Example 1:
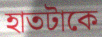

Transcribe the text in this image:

হাতটাকে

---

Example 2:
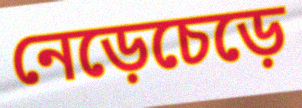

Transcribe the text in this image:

নেড়েচেড়ে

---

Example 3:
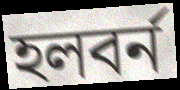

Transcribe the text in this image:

হলবর্ন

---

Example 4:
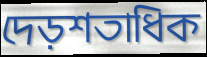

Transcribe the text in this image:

দেড়শতাধিক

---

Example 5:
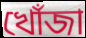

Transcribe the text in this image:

খোঁজা